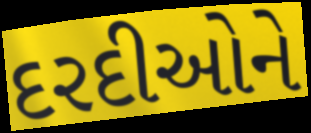
દરદીઓને